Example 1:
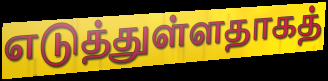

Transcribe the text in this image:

எடுத்துள்ளதாகத்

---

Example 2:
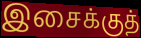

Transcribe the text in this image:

இசைக்குத்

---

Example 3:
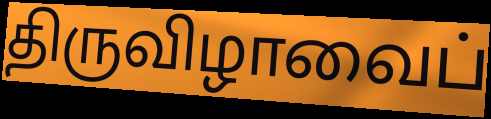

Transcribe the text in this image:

திருவிழாவைப்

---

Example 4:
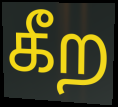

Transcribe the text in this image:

கீற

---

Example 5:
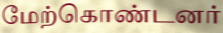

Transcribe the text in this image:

மேற்கொண்டனர்